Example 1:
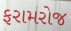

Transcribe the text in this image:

ફરામરોજ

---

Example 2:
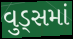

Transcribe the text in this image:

વુડ્સમાં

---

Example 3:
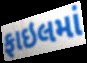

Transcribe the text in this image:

ફાઇલમાં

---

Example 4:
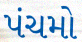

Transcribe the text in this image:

પંચમો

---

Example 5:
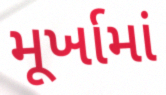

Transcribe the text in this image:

મૂર્ખામાં